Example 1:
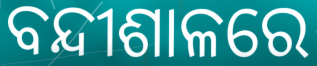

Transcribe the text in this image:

ବନ୍ଦୀଶାଳରେ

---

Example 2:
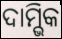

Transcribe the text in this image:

ଦାମ୍ଭିକ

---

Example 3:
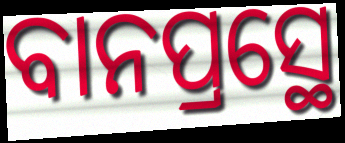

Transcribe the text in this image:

ବାନପ୍ରସ୍ଥେ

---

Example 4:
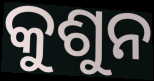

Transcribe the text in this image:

କୁଶୁନ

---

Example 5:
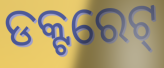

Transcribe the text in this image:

ଡକ୍ଟରେଟ୍